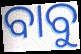
ବାବୁ